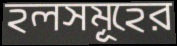
হলসমূহের